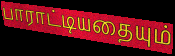
பாராட்டியதையும்